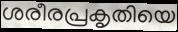
ശരീരപ്രകൃതിയെ